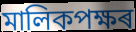
মালিকপক্ষৰ